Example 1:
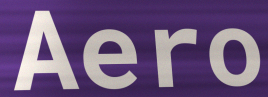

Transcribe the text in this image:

Aero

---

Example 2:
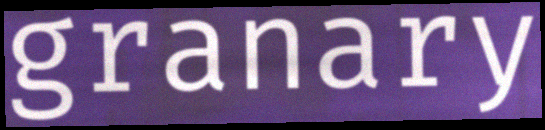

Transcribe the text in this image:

granary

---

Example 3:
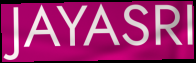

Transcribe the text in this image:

JAYASRI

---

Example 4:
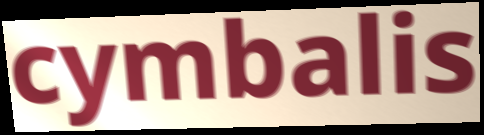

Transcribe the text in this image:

cymbalis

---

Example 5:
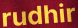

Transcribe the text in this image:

rudhir